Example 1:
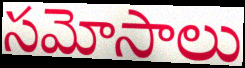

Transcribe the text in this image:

సమోసాలు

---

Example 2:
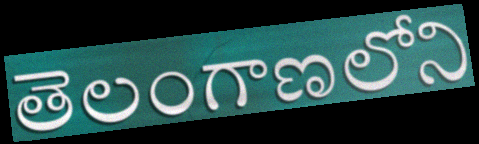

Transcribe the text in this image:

తెలంగాణలోని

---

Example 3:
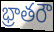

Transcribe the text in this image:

భ్రాతరౌ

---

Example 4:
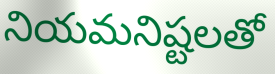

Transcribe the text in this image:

నియమనిష్టలతో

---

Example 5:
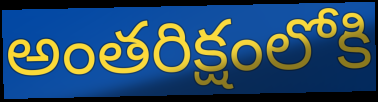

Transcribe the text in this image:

అంతరిక్షంలోకి